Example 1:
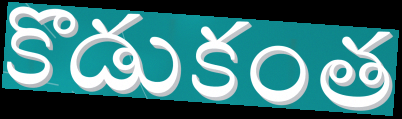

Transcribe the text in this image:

కొడుకంత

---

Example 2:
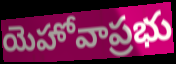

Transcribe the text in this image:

యెహోవాప్రభు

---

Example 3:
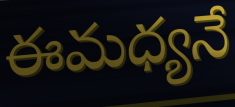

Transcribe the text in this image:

ఈమధ్యనే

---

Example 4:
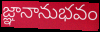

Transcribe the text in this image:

జ్ఞానానుభవం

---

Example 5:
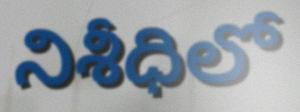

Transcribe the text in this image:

నిశీధిలో